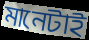
মানেটাই